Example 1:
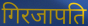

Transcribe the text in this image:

गिरजापति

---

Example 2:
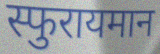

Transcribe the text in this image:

स्फुरायमान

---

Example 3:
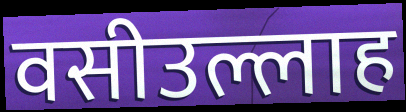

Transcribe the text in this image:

वसीउल्लाह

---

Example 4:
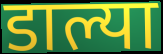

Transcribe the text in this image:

डाल्या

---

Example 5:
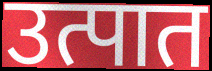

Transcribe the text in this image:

उत्पात